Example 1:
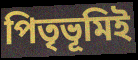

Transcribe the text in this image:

পিতৃভূমিই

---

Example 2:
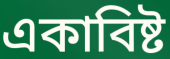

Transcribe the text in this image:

একাবিষ্ট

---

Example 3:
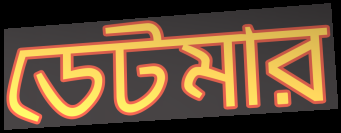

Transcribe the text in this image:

ডেটমার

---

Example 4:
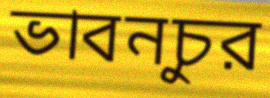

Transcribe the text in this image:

ভাবনচুর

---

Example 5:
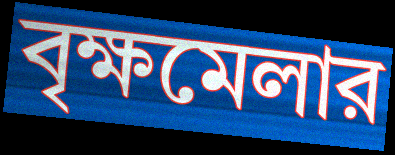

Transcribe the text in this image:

বৃক্ষমেলার